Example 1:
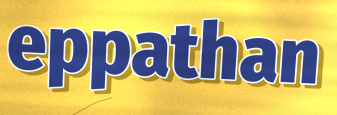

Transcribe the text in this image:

eppathan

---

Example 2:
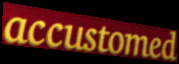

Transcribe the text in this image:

accustomed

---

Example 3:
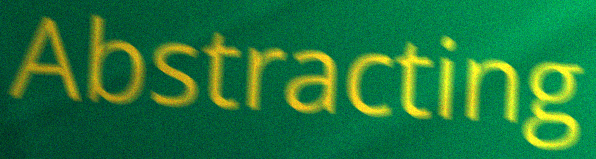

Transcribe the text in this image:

Abstracting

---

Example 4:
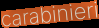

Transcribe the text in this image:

carabinieri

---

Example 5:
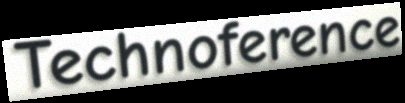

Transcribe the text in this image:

Technoference